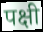
पक्षी